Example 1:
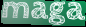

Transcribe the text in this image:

maga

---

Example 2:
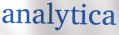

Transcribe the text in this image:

analytica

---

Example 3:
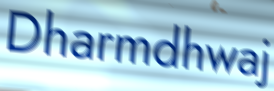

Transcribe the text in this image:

Dharmdhwaj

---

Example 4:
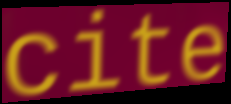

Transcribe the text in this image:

cite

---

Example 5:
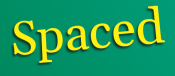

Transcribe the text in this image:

Spaced